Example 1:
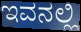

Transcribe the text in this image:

ಇವನಲ್ಲಿ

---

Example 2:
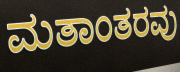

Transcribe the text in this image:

ಮತಾಂತರವು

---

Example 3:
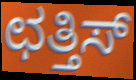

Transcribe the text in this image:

ಛತ್ತಿಸ್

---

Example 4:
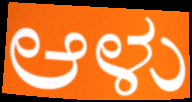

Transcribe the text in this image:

ಆಳು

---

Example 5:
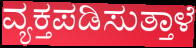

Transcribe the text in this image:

ವ್ಯಕ್ತಪಡಿಸುತ್ತಾಳೆ